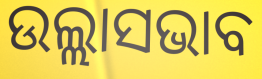
ଉଲ୍ଲାସଭାବ